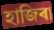
হাজিৰা